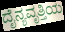
ದೈನ್ಯವೃತ್ತಿಯ